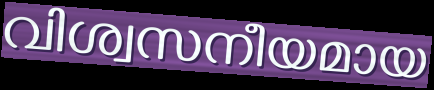
വിശ്വസനീയമായ